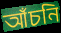
আঁচনি